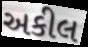
અકીલ